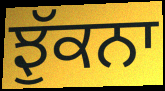
ਝੁੱਕਨਾ